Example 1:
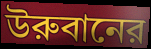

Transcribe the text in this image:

উরুবানের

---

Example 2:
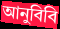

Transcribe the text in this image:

আনুবিবি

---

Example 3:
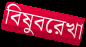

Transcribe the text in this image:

বিষুবরেখা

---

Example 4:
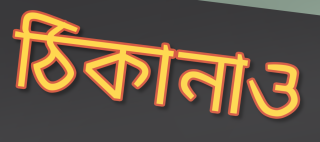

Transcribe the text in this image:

ঠিকানাও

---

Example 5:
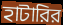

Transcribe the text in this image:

হাটারির